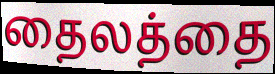
தைலத்தை